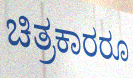
ಚಿತ್ರಕಾರರೂ